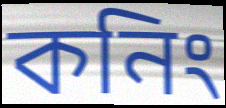
কনিং